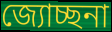
জ্যোচ্ছনা